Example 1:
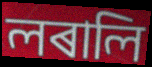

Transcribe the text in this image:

লৰালি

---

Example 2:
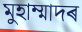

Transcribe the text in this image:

মুহাম্মাদৰ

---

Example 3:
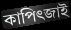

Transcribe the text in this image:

কাপিৎজাই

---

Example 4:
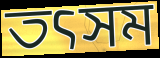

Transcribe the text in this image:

তৎসম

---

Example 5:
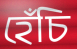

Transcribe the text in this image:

হেঁচি